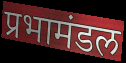
प्रभामंडल